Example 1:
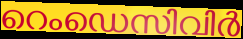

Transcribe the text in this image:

റെംഡെസിവിർ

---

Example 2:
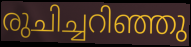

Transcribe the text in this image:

രുചിച്ചറിഞ്ഞു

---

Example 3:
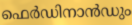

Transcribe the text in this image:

ഫെർഡിനാൻഡും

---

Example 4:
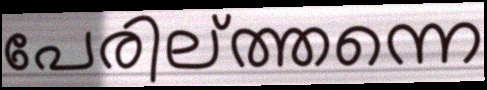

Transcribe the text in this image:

പേരില്ത്തന്നെ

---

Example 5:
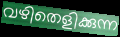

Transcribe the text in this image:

വഴിതെളിക്കുന്ന